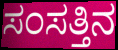
ಸಂಸತ್ತಿನ